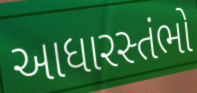
આધારસ્તંભો